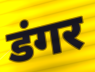
डंगर